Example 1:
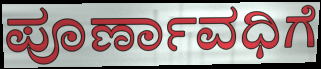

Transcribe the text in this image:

ಪೂರ್ಣಾವಧಿಗೆ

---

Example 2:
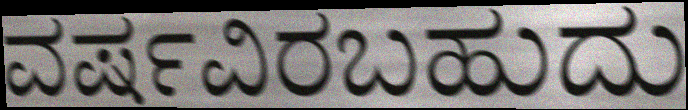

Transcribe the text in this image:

ವರ್ಷವಿರಬಹುದು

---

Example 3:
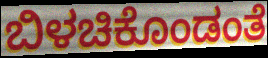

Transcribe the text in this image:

ಬಿಳಚಿಕೊಂಡಂತೆ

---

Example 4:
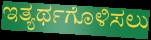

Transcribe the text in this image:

ಇತ್ಯರ್ಥಗೊಳಿಸಲು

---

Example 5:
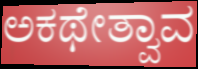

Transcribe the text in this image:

ಅಕಥೇತ್ವಾವ